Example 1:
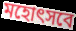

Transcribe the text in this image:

মহোৎসবে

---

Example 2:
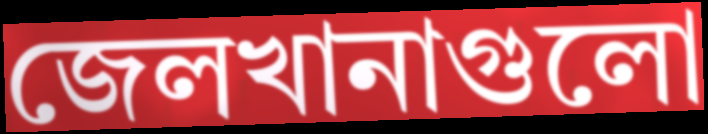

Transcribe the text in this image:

জেলখানাগুলো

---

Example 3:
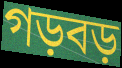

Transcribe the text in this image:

গড়বড়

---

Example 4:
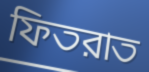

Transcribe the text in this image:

ফিতরাত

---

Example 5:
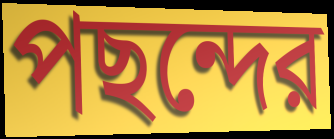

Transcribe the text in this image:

পছন্দের